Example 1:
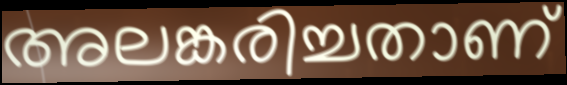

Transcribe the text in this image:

അലങ്കരിച്ചതാണ്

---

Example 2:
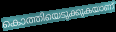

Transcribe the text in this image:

കൊത്തിയെടുക്കുകയാണ്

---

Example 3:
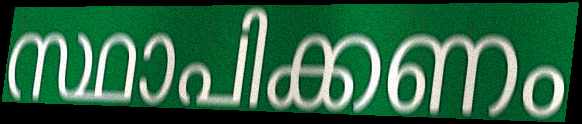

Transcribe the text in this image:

സ്ഥാപിക്കണം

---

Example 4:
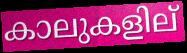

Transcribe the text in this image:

കാലുകളില്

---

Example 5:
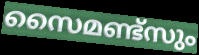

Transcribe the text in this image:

സൈമണ്ട്സും